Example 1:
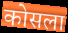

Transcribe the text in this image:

कोसला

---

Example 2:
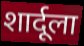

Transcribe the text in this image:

शार्दूला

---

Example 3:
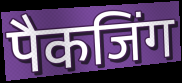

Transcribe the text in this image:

पैकजिंग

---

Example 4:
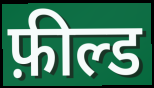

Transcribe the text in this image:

फ़ील्ड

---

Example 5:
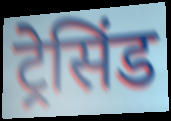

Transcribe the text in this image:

ट्रेसिंड